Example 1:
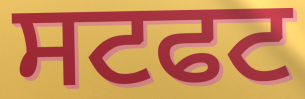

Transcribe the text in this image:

ਸਟਫਟ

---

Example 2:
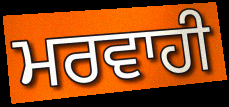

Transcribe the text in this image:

ਮਰਵਾਹੀ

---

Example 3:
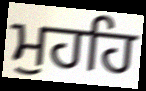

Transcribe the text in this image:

ਮੁਹਹਿ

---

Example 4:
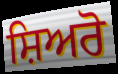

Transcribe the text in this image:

ਸ਼ਿਅਰੋ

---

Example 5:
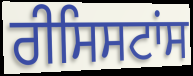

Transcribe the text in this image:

ਰੀਸਿਸਟਾਂਸ